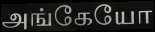
அங்கேயோ